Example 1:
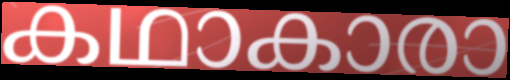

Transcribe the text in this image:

കഥാകാരാ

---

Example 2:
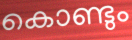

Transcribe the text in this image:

കൊണ്ടും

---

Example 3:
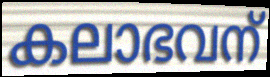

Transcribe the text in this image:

കലാഭവന്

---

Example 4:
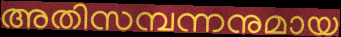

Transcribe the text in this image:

അതിസമ്പന്നനുമായ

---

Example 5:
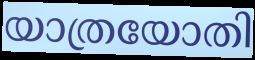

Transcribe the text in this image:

യാത്രയോതി